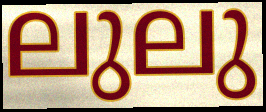
ലുലു